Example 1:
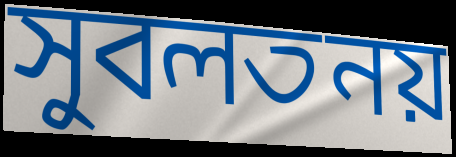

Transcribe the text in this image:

সুবলতনয়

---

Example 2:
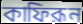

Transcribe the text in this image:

কাফিরূন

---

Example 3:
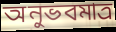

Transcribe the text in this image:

অনুভবমাত্র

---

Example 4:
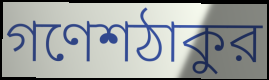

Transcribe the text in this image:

গণেশঠাকুর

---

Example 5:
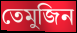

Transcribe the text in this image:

তেমুজিন